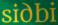
sidbi